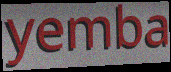
yemba